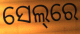
ସେଲ୍‌ରେ